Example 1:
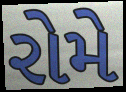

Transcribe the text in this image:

રોમે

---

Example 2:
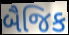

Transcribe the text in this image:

બૈજિક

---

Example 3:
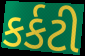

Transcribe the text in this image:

કર્કટી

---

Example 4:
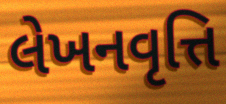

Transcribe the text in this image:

લેખનવૃત્તિ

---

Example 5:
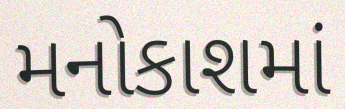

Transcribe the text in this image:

મનોકાશમાં